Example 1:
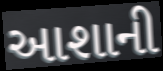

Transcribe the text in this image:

આશાની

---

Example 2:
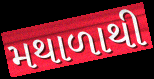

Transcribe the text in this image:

મથાળાથી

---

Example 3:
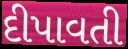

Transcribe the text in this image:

દીપાવતી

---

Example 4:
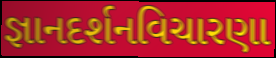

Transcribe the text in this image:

જ્ઞાનદર્શનવિચારણા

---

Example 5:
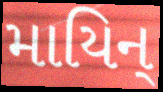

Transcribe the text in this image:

માયિન્